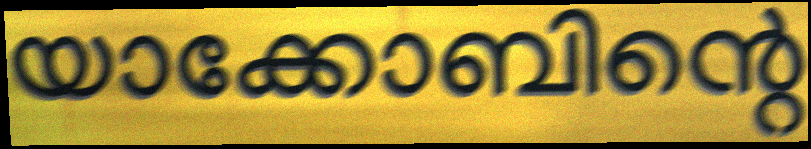
യാക്കോബിന്റെ